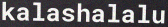
kalashalalu